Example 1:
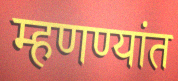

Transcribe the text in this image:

म्हणण्यांत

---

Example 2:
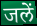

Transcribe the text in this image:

जलें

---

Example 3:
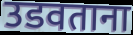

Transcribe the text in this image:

उडवताना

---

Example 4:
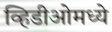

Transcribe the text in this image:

व्हिडीओमध्ये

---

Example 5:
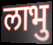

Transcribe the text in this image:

लाभु